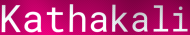
Kathakali